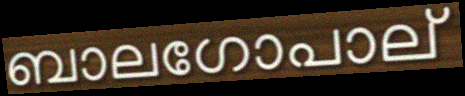
ബാലഗോപാല്